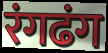
रंगढंग